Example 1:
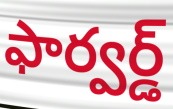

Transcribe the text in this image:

ఫార్వర్డ్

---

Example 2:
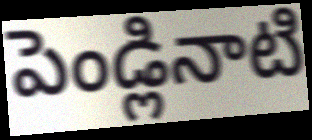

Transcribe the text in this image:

పెండ్లినాటి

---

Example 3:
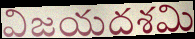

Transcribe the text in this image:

విజయదశమి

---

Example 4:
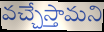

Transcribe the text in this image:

వచ్చేస్తామని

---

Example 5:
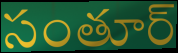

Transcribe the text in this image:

సంతూర్